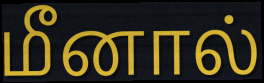
மீனால்